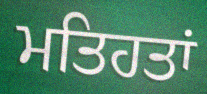
ਮਤਿਹਤਾਂ